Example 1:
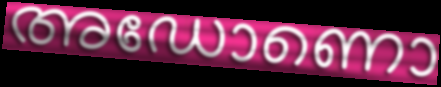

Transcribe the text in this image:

അഡോണൊ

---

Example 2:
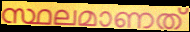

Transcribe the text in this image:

സ്ഥലമാണത്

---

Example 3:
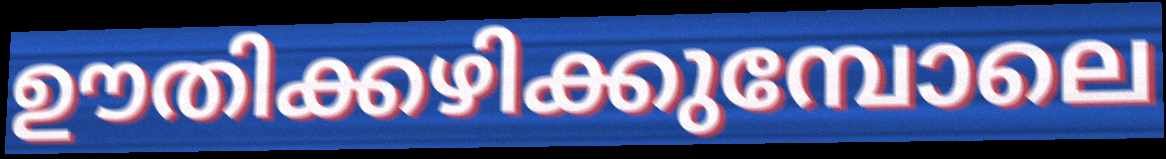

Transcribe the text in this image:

ഊതിക്കഴിക്കുമ്പോലെ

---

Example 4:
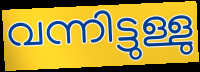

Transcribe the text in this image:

വന്നിട്ടുള്ളു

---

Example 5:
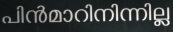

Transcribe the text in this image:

പിൻമാറിനിന്നില്ല